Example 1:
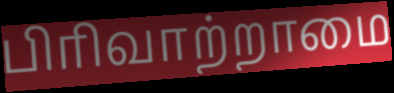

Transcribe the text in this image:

பிரிவாற்றாமை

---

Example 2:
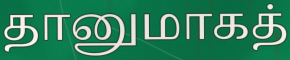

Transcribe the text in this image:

தானுமாகத்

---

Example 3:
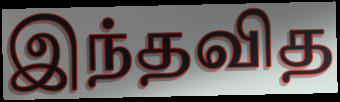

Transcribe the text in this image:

இந்தவித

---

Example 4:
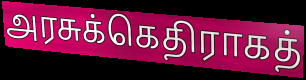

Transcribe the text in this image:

அரசுக்கெதிராகத்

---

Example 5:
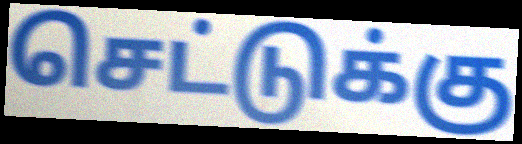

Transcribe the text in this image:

செட்டுக்கு